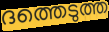
ദത്തെടുത്ത